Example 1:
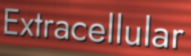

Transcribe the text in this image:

Extracellular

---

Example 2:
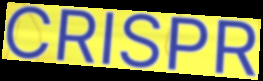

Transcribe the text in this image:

CRISPR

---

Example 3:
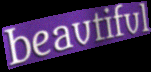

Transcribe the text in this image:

beautiful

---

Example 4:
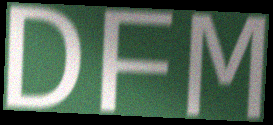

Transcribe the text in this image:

DFM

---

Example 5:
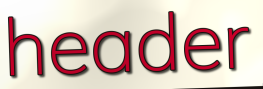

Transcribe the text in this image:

header